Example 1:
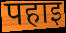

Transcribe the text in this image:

पहाइ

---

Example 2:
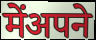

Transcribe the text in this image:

मेंअपने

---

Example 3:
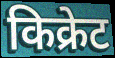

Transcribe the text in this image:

किक्रेट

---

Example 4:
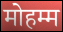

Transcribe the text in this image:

मोहम्म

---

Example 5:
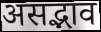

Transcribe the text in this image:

असद्भाव